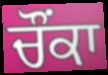
ਚੌਂਕਾ